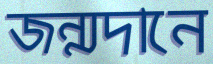
জন্মদানে